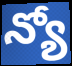
న్యో